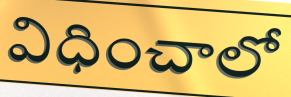
విధించాలో